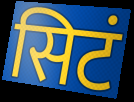
सिटं